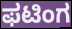
ಫಟಿಂಗ